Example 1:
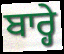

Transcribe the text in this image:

ਬਾਰ੍ਹੇ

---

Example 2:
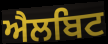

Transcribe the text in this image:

ਐਲਬਿਟ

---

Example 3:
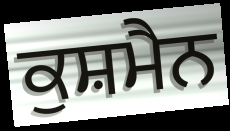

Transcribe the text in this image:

ਕੁਸ਼ਮੈਨ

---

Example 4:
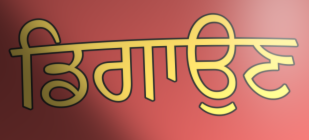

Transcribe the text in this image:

ਡਿਗਾਉਣ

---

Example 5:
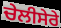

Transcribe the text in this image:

ਚੇਲੀਸੇਰੇ